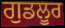
ਗੁਡਲੂਰ